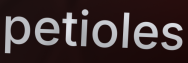
petioles